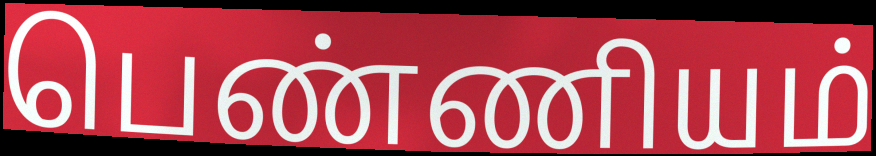
பெண்ணியம்